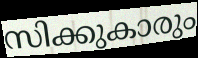
സിക്കുകാരും